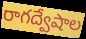
రాగద్వేషాల